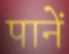
पानें